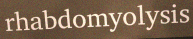
rhabdomyolysis